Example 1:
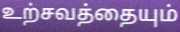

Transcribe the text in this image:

உற்சவத்தையும்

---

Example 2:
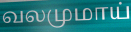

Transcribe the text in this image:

வலமுமாய்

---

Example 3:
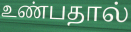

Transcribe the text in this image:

உண்பதால்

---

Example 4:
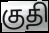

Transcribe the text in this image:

குதி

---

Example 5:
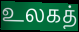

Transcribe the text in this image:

உலகத்